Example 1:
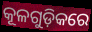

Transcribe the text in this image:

କୂଳଗୁଡ଼ିକରେ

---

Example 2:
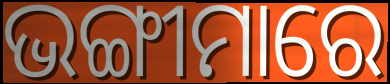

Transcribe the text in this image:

ଭଙ୍ଗୀମାରେ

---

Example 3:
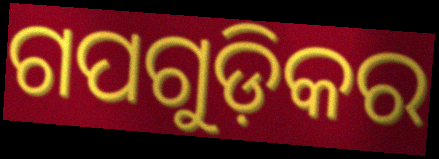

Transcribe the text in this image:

ଗପଗୁଡ଼ିକର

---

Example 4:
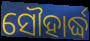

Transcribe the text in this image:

ସୌହାର୍ଦ୍ଧ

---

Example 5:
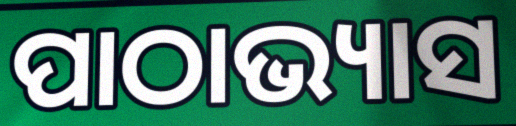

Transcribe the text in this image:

ପାଠାଭ୍ୟାସ